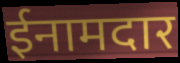
ईनामदार